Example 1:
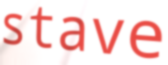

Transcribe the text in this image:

stave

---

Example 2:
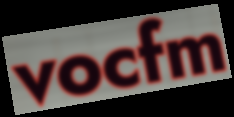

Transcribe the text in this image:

vocfm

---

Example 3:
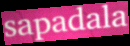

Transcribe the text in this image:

sapadala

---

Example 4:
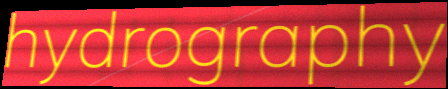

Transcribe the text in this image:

hydrography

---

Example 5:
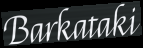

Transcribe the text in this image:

Barkataki